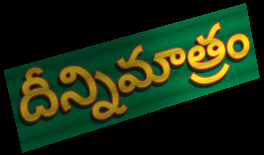
దీన్నిమాత్రం